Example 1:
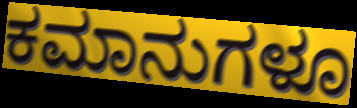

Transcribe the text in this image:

ಕಮಾನುಗಳೂ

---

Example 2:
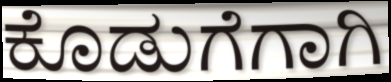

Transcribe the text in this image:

ಕೊಡುಗೆಗಾಗಿ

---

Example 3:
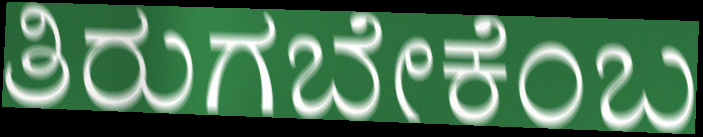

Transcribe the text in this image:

ತಿರುಗಬೇಕೆಂಬ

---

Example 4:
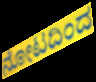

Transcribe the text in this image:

ನೋಟದಿಂದ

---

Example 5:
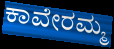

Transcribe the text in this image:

ಕಾವೇರಮ್ಮ